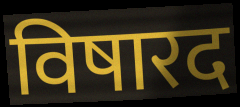
विषारद